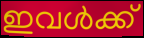
ഇവൾക്ക്